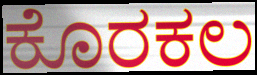
ಕೊರಕಲ